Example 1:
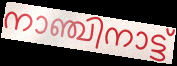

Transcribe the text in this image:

നാഞ്ചിനാട്ട്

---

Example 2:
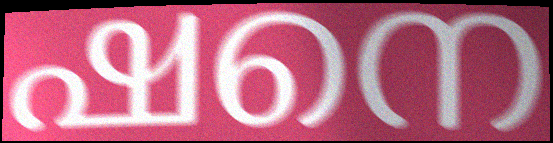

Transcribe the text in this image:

ഷനെ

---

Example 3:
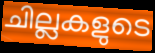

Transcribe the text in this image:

ചില്ലകളുടെ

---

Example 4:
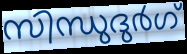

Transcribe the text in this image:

സിന്ധുദുർഗ്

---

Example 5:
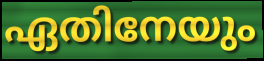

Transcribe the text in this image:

ഏതിനേയും